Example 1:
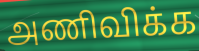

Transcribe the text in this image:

அணிவிக்க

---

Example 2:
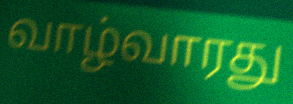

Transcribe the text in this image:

வாழ்வாரது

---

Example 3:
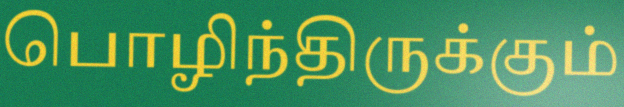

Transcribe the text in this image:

பொழிந்திருக்கும்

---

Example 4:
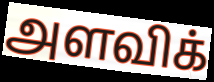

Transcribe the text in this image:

அளவிக்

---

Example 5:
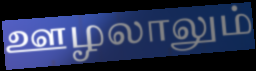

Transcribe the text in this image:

ஊழலாலும்